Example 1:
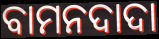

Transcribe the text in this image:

ବାମନଦାଦା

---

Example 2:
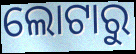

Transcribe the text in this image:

ଲୋଟାରୁ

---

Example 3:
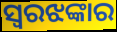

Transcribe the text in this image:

ସ୍ୱରଝଙ୍କାର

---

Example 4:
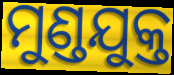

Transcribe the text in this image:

ମୁଣ୍ଡଯୁକ୍ତ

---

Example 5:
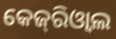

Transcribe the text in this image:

କେଜ୍‌ରିଓ୍ବାଲ